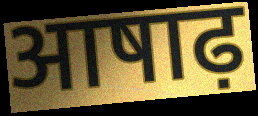
आषाढ़